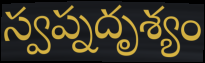
స్వప్నదృశ్యం